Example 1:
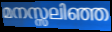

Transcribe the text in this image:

മനസ്സലിഞ്ഞ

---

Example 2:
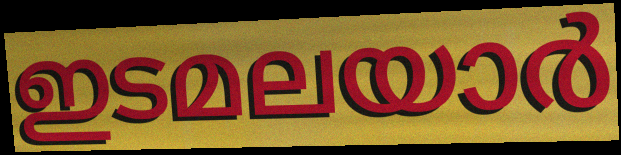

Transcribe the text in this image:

ഇടമലയാർ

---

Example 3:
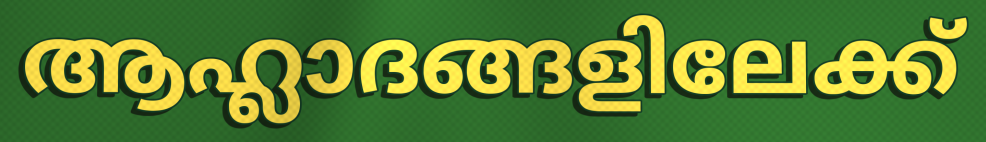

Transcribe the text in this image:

ആഹ്ലാദങ്ങളിലേക്ക്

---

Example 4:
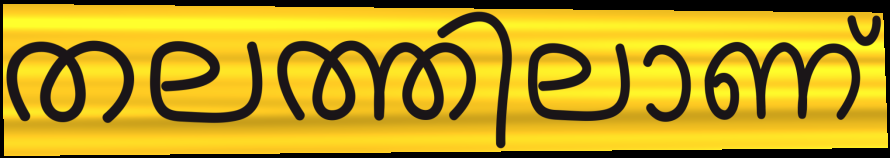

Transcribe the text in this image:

തലത്തിലാണ്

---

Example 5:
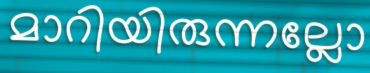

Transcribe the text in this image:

മാറിയിരുന്നല്ലോ